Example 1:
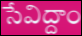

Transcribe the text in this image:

సేవిద్దాం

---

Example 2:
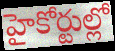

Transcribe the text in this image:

హైకోర్టుల్లో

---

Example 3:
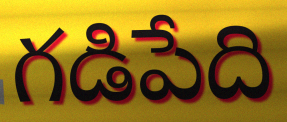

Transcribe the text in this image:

గడిపేది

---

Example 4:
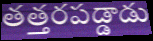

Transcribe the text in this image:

తత్తరపడ్డాడు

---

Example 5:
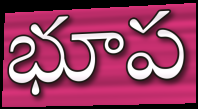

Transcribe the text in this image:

భూప